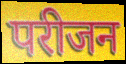
परीजन